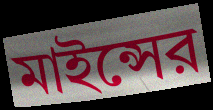
মাইন্সের